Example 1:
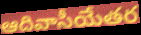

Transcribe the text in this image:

ఆదివాసీయేతర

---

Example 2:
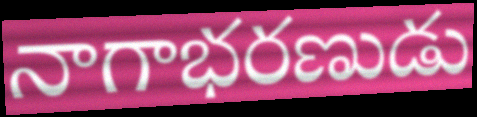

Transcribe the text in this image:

నాగాభరణుడు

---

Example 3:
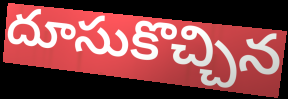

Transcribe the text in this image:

దూసుకొచ్చిన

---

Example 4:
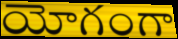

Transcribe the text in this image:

యోగంగా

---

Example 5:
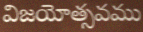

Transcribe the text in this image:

విజయోత్సవము